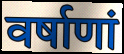
वर्षाणां